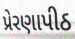
પ્રેરણાપીઠ